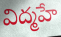
విద్మహే